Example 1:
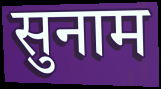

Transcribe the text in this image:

सुनाम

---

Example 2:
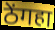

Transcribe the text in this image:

ठेंगहा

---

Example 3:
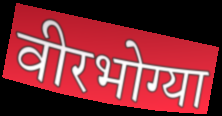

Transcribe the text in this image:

वीरभोग्या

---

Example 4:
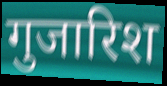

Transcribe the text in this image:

गुजारिश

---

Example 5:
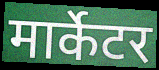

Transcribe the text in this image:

मार्केटर